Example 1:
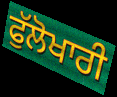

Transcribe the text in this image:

ਫੁੱਲੋਖਾਰੀ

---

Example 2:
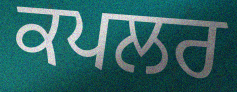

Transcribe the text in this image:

ਕਪਲਰ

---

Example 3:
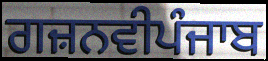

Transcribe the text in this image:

ਗਜ਼ਨਵੀਪੰਜਾਬ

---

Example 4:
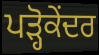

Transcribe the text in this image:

ਪੜ੍ਹੋਕੇਂਦਰ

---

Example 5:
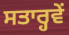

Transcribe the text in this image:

ਸਤਾਰ੍ਹਵੇਂ